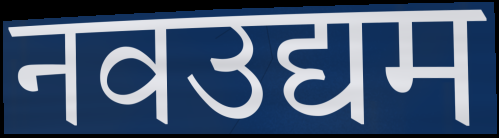
नवउद्यम